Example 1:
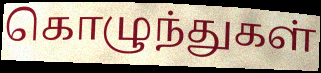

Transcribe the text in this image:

கொழுந்துகள்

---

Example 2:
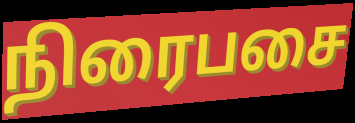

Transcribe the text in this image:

நிரைபசை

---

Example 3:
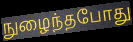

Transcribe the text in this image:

நுழைந்தபோது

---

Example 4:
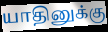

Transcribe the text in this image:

யாதினுக்கு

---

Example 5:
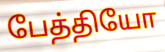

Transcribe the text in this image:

பேத்தியோ